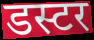
डस्टर